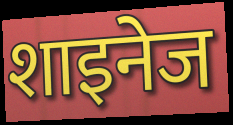
शाइनेज